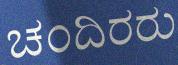
ಚಂದಿರರು